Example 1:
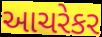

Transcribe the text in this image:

આચરેકર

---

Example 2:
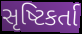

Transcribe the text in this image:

સૃષ્ટિકર્તા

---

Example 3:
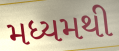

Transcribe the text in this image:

મધ્યમથી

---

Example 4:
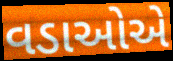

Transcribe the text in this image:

વડાઓએ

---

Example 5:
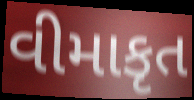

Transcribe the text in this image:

વીમાકૃત